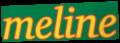
meline